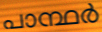
പാന്ഥർ